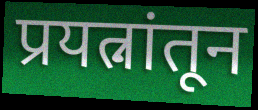
प्रयत्नांतून